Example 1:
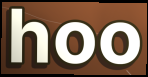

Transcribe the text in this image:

hoo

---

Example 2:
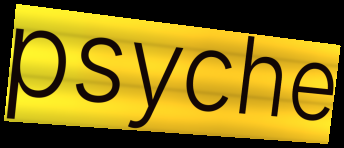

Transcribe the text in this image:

psyche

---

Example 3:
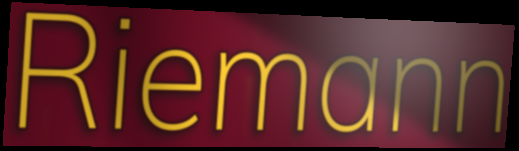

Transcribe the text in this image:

Riemann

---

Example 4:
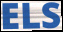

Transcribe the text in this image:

ELS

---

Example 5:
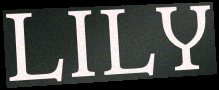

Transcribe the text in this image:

LILY